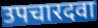
उपचारदवा